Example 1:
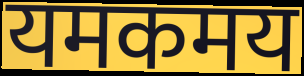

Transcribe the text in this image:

यमकमय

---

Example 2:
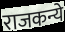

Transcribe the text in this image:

राजकन्ये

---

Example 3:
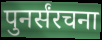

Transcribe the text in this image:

पुनर्संरचना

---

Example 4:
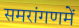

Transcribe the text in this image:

समरांगणमें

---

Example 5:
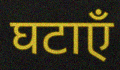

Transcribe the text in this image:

घटाएँ